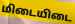
மிடையிடை